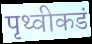
पृथ्वीकडं